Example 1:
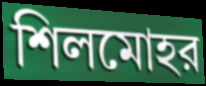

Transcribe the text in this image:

শিলমোহর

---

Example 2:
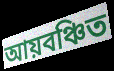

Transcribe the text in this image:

আয়বঞ্চিত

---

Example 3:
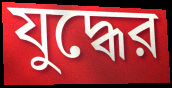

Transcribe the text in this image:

যুদ্ধের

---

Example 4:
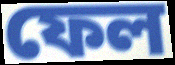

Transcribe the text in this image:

ফেল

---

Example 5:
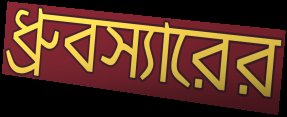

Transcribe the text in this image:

ধ্রুবস্যারের